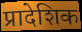
प्रादेशिक